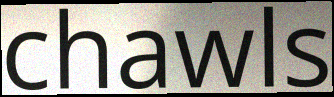
chawls